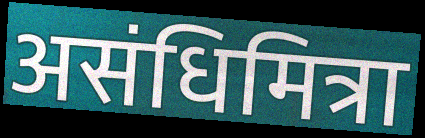
असंधिमित्रा